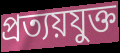
প্রত্যয়যুক্ত